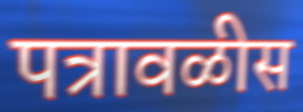
पत्रावळीस